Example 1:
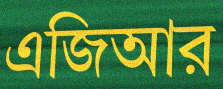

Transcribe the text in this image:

এজিআর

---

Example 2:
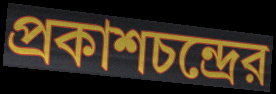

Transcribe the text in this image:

প্রকাশচন্দ্রের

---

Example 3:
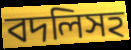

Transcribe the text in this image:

বদলিসহ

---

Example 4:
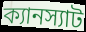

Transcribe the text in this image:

ক্যানস্যাট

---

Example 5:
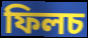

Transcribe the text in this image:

ফিলচ